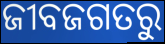
ଜୀବଜଗତରୁ